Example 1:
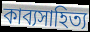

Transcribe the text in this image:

কাব্যসাহিত্য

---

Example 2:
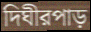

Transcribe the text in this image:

দিঘীরপাড়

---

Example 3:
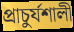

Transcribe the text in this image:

প্রাচুর্যশালী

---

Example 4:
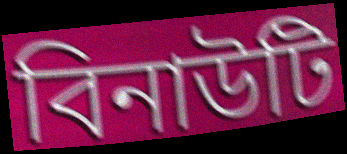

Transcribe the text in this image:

বিনাউটি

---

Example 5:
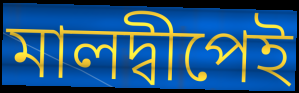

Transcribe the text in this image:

মালদ্বীপেই